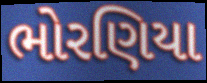
ભોરણિયા